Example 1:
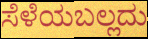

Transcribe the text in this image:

ಸೆಳೆಯಬಲ್ಲದು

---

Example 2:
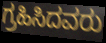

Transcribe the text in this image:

ಗ್ರಹಿಸಿದವರು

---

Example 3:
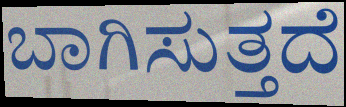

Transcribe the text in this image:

ಬಾಗಿಸುತ್ತದೆ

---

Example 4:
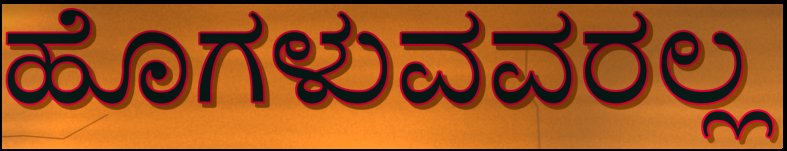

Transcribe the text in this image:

ಹೊಗಳುವವರಲ್ಲ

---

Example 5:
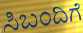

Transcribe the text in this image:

ಸಿಬಂದಿಗೆ